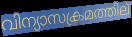
വിന്യാസക്രമത്തില്